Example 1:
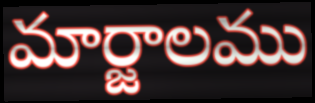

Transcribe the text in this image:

మార్జాలము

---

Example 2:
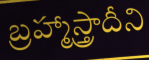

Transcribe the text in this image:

బ్రహ్మాస్త్రాదీని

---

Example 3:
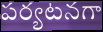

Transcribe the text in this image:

పర్యటనగా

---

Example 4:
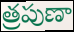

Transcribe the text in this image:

త్రపుణా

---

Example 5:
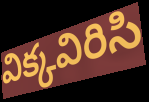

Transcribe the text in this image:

విక్కవిరిసి